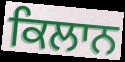
ਕਿਲਾਨ